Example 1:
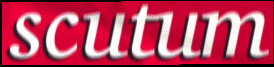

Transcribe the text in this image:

scutum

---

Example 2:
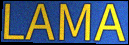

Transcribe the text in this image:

LAMA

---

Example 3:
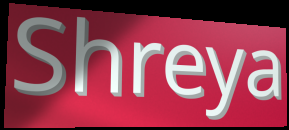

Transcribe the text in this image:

Shreya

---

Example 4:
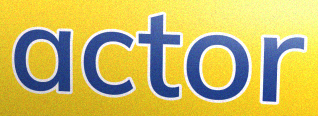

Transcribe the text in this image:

actor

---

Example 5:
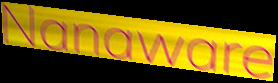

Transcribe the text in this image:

Nanaware